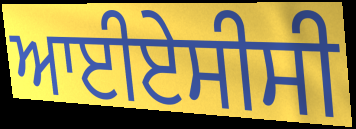
ਆਈਏਸੀਸੀ